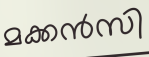
മക്കൻസി